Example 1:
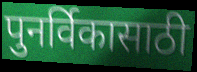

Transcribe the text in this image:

पुनर्विकासाठी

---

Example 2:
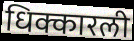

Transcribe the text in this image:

धिक्कारली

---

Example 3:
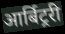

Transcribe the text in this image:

आर्बिट्ररी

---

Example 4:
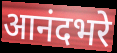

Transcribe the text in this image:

आनंदभरे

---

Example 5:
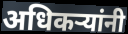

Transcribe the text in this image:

अधिकऱ्यांनी